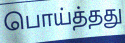
பொய்த்தது